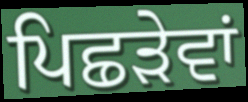
ਪਿਛੜੇਵਾਂ